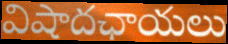
విషాదఛాయలు